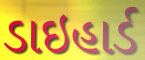
ડાઇહાર્ડ